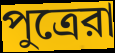
পুত্রেরা